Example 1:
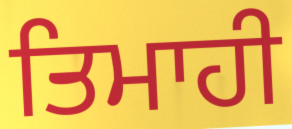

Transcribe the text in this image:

ਤਿਮਾਹੀ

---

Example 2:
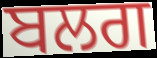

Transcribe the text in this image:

ਬਲਗ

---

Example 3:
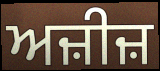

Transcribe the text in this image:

ਅਜ਼ੀਜ਼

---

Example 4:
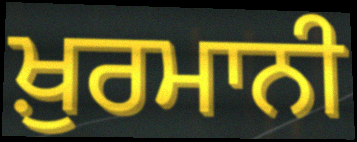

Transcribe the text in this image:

ਖ਼ੁਰਮਾਨੀ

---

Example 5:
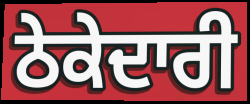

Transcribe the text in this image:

ਠੇਕੇਦਾਰੀ